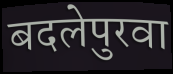
बदलेपुरवा